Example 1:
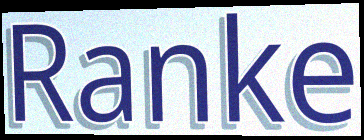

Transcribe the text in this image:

Ranke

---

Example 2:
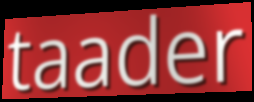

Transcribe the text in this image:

taader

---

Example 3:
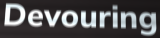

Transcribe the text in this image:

Devouring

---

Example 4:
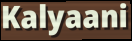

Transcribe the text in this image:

Kalyaani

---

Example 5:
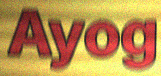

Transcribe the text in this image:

Ayog